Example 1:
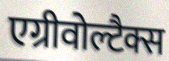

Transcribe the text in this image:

एग्रीवोल्टैक्स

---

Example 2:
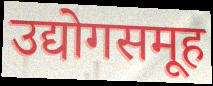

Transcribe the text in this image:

उद्योगसमूह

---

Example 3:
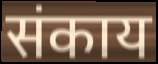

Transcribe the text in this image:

संकाय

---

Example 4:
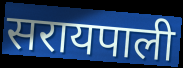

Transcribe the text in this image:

सरायपाली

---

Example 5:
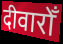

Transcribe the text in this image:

दीवारोँ